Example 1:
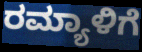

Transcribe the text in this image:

ರಮ್ಯಾಳಿಗೆ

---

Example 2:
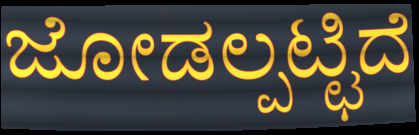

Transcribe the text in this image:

ಜೋಡಲ್ಪಟ್ಟಿದೆ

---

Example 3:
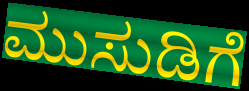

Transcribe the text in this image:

ಮುಸುಡಿಗೆ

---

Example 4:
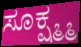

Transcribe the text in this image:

ಸೂಕ್ಷ್ಮ್ಮ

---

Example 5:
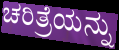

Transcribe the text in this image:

ಚರಿತ್ರೆಯನ್ನು